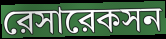
রেসারেকসন